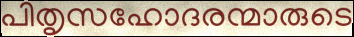
പിതൃസഹോദരന്മാരുടെ